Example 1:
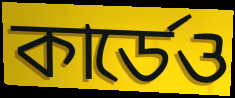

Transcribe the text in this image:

কার্ডেও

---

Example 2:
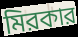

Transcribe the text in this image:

মিরকার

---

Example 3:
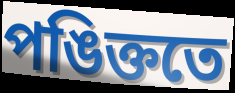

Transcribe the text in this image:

পঙিক্ততে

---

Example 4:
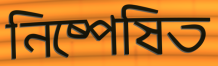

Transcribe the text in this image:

নিষ্পেষিত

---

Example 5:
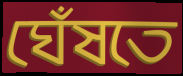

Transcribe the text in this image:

ঘেঁষতে